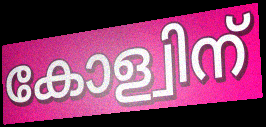
കോള്വിന്